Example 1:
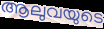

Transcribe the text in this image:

ആലുവയുടെ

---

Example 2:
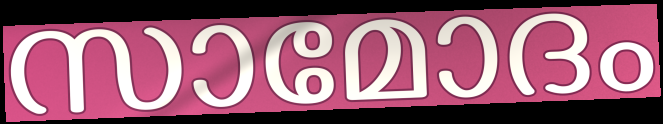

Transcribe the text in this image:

സാമോദം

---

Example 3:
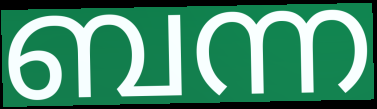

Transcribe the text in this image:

ബന്ന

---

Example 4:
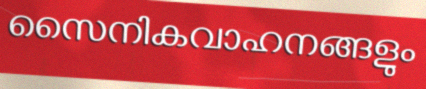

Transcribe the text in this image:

സൈനികവാഹനങ്ങളും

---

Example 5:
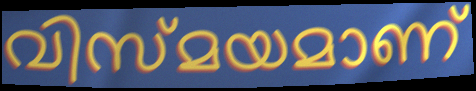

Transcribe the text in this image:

വിസ്മയമാണ്